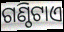
ଗଣ୍ଠିଟାଏ